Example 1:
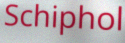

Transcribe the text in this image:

Schiphol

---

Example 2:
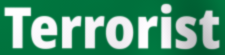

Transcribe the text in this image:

Terrorist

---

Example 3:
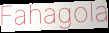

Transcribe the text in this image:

Fahagola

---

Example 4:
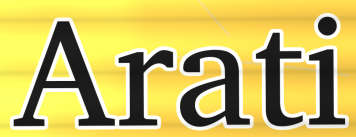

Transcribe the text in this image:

Arati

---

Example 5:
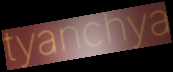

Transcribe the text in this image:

tyanchya